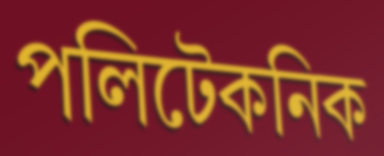
পলিটেকনিক